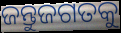
ଜନ୍ତୁଜଗତକୁ